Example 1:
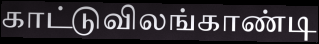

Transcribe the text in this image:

காட்டுவிலங்காண்டி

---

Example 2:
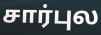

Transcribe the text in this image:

சார்புல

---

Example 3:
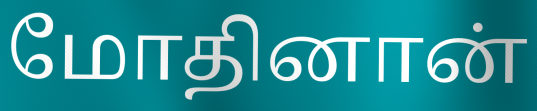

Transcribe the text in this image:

மோதினான்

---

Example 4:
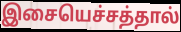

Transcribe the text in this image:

இசையெச்சத்தால்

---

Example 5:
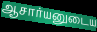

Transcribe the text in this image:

ஆசார்யனுடைய